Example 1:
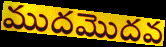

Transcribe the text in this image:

ముదమొదవ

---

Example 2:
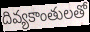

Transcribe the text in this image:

దివ్యకాంతులతో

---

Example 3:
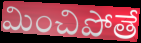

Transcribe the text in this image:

మించిపోతే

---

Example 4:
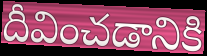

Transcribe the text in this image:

దీవించడానికి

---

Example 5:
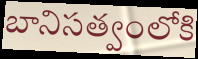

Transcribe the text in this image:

బానిసత్వంలోకి